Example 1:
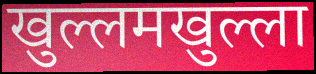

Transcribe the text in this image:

खुल्लमखुल्ला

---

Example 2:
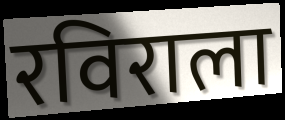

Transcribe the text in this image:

रविराला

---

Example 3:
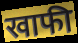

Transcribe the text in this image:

खाफी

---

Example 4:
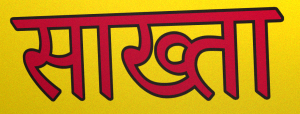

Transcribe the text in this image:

साख्ता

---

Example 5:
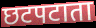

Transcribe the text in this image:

छटपटाता